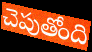
చెపుతోంది